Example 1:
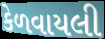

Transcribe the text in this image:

કેળવાયલી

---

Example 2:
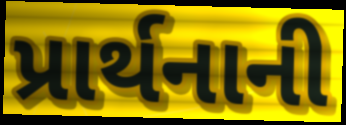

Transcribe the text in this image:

પ્રાર્થનાની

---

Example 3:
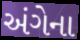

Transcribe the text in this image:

અંગેના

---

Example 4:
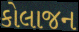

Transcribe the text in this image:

કોલાજન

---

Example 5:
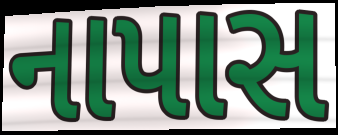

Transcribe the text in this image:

નાપાસ